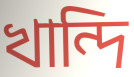
খান্দি